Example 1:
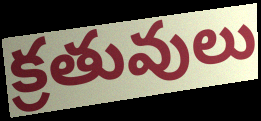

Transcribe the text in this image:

క్రతువులు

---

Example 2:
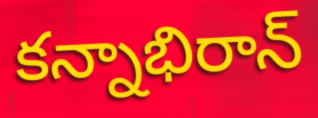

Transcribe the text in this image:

కన్నాభిరాన్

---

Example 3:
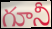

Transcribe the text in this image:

గూనీ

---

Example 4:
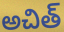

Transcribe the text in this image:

అచిత్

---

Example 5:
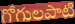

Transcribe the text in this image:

గోగులపాటి